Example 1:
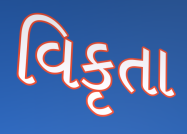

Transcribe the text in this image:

વિકૃતા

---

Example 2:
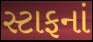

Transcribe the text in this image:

સ્ટાફનાં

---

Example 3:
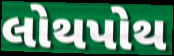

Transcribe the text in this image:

લોથપોથ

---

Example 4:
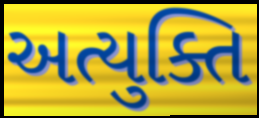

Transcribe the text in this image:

અત્યુક્તિ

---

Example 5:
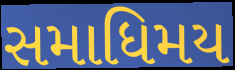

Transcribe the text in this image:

સમાધિમય